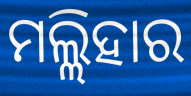
ମଲ୍ଲିହାର